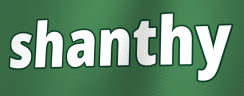
shanthy